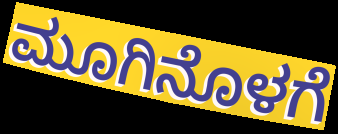
ಮೂಗಿನೊಳಗೆ